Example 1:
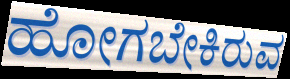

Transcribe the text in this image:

ಹೋಗಬೇಕಿರುವ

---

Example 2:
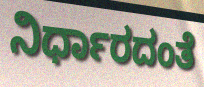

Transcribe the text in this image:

ನಿರ್ಧಾರದಂತೆ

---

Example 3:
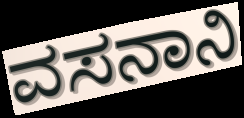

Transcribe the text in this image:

ವಸನಾನಿ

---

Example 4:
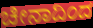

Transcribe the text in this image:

ಚೀನಾದಿಂದ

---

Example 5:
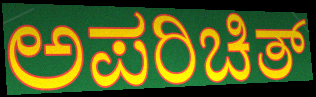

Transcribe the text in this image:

ಅಪರಿಚಿತ್